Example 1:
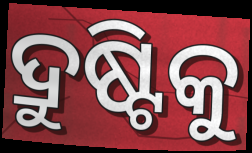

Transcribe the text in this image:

ଦ୍ରୁଷ୍ଟିକୁ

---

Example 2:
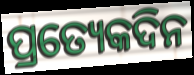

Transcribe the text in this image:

ପ୍ରତ୍ୟେକଦିନ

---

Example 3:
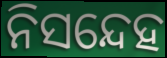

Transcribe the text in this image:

ନିସନ୍ଦେହ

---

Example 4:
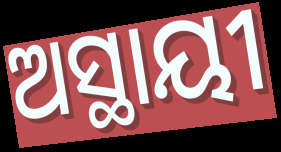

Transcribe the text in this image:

ଅସ୍ଥାୟୀ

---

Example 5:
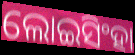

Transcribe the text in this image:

ଲୋଇସିଂହା